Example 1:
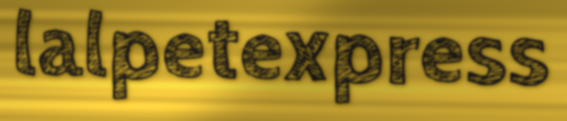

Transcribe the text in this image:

lalpetexpress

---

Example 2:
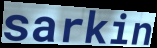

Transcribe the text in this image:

sarkin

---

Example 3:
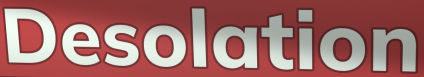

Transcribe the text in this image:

Desolation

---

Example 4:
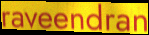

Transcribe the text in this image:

raveendran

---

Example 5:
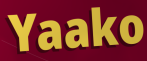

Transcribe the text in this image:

Yaako